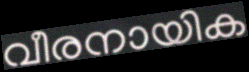
വീരനായിക